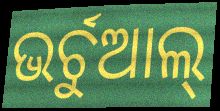
ଭର୍ଚୁଆଲ୍